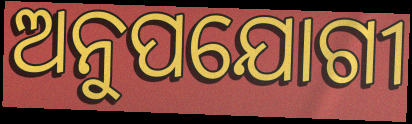
ଅନୁପଯୋଗୀ